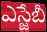
ఎస్జేబీ